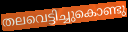
തലവെട്ടിച്ചുകൊണ്ടു